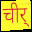
चीर्